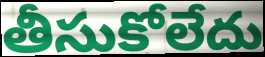
తీసుకోలేదు